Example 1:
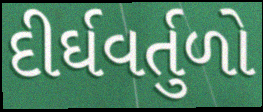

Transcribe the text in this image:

દીર્ઘવર્તુળો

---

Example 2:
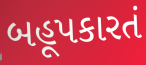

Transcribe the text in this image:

બહૂપકારતં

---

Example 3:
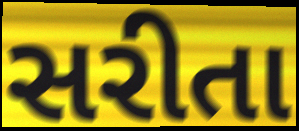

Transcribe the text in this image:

સરીતા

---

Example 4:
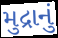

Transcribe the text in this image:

મુદ્રાનું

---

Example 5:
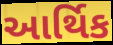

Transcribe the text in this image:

આર્થિક